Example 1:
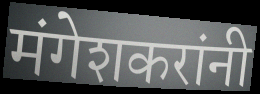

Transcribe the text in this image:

मंगेशकरांनी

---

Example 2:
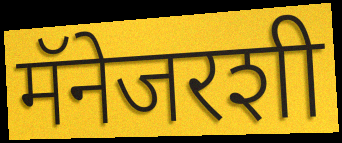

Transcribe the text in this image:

मॅनेजरशी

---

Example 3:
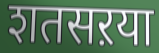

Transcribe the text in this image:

शतसऱया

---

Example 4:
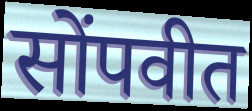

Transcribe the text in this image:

सोंपवीत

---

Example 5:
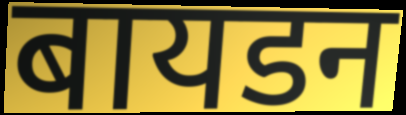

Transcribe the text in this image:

बायडन